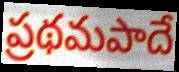
ప్రథమపాదే